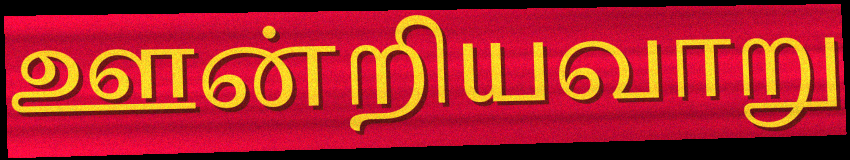
ஊன்றியவாறு